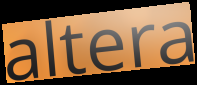
altera